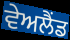
ਵੇਅਲੈਂਡ